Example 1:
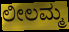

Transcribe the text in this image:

ಲೀಲಮ್ಮ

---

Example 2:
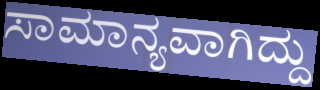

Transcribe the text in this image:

ಸಾಮಾನ್ಯವಾಗಿದ್ದು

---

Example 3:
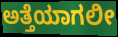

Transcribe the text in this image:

ಅತ್ತೆಯಾಗಲೀ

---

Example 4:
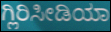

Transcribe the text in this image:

ಗ್ಲಿರಿಸೀಡಿಯಾ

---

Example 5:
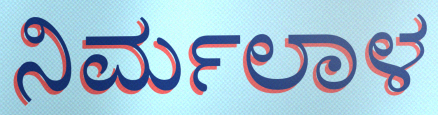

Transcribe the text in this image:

ನಿರ್ಮಲಾಳ